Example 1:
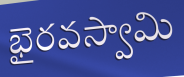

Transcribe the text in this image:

భైరవస్వామి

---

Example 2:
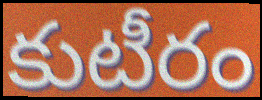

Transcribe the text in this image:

కుటీరం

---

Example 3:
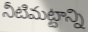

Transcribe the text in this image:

నీటిమట్టాన్ని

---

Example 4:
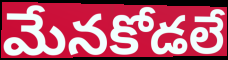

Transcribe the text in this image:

మేనకోడలే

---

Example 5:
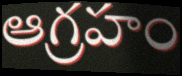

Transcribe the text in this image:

ఆగ్రహం